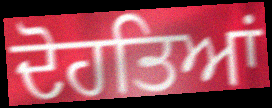
ਦੋਹਤਿਆਂ